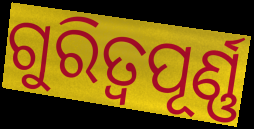
ଗୁରିତ୍ୱପୂର୍ଣ୍ଣ